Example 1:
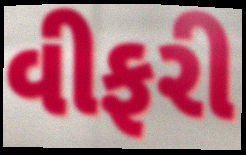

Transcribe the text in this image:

વીફરી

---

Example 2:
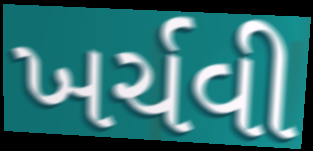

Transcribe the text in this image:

ખર્ચવી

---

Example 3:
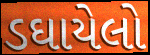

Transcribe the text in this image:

ડઘાયેલો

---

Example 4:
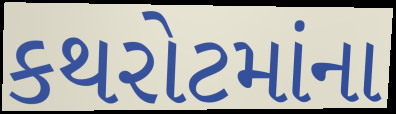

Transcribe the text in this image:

કથરોટમાંના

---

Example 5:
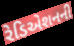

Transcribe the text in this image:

રેડિએશનની